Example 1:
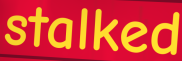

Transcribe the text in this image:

stalked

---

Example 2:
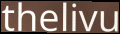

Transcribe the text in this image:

thelivu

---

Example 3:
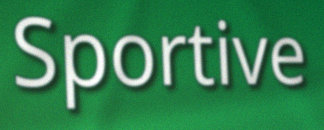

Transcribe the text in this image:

Sportive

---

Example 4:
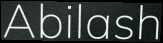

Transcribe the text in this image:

Abilash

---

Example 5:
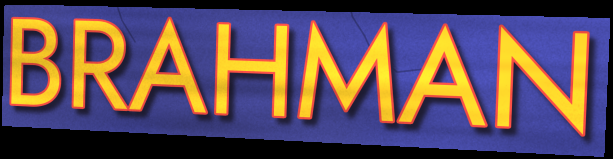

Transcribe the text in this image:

BRAHMAN